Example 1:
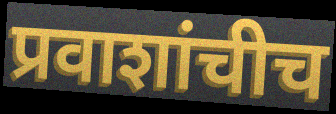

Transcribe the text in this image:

प्रवाशांचीच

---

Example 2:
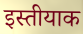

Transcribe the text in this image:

इस्तीयाक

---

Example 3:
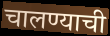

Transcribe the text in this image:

चालण्याची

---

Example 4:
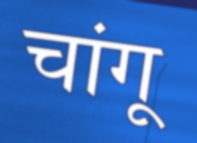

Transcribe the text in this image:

चांगू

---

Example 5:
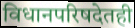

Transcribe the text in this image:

विधानपरिषदेतही